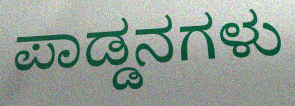
ಪಾಡ್ಡನಗಳು